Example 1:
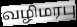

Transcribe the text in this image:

வழிமரபு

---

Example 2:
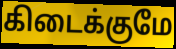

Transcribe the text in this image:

கிடைக்குமே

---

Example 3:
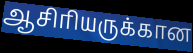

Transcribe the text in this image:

ஆசிரியருக்கான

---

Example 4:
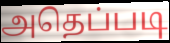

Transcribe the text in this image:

அதெப்படி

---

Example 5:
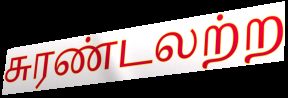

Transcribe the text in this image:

சுரண்டலற்ற